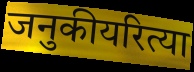
जनुकीयरित्या